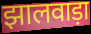
झालवाड़ा